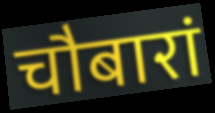
चौबारां